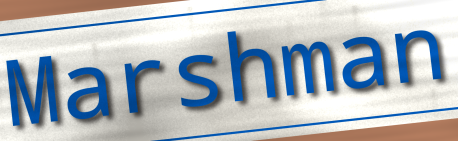
Marshman